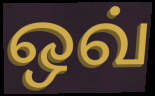
ஒவ்